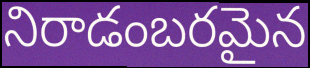
నిరాడంబరమైన